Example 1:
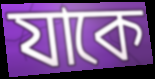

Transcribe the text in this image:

যাকে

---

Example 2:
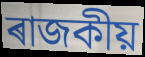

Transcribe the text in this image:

ৰাজকীয়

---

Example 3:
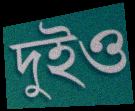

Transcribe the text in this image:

দুইও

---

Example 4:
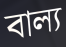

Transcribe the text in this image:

বাল্য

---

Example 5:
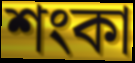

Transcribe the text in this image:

শংকা